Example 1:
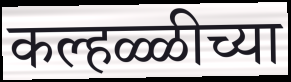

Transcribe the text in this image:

कल्हळ्ळीच्या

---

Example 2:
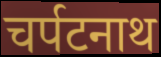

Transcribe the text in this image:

चर्पटनाथ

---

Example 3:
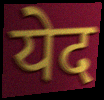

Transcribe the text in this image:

येद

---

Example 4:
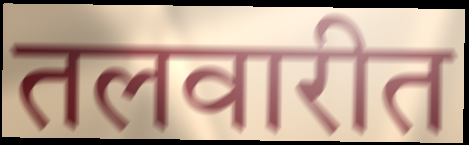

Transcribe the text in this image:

तलवारीत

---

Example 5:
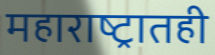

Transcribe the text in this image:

महाराष्ट्रातही